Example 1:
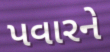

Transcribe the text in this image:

પવારને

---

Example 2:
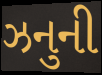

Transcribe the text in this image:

ઝનુની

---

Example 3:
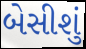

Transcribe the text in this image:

બેસીશું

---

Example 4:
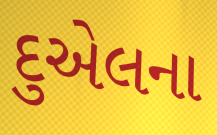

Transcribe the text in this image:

દુએલના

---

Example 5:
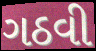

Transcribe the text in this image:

ગઠવી